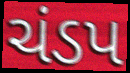
ચંડપ